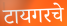
टायगरचे